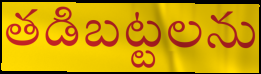
తడిబట్టలను